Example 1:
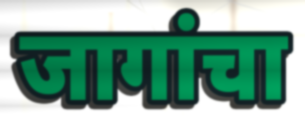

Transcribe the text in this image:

जागांचा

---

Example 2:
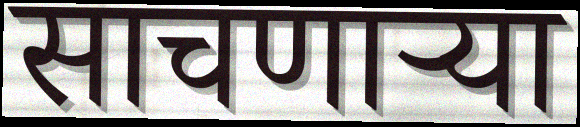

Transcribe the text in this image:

साचणार्‍या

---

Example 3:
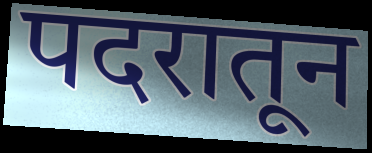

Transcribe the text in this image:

पदरातून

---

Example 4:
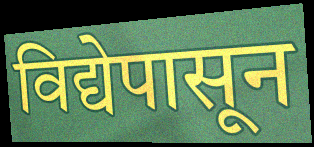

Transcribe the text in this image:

विद्येपासून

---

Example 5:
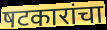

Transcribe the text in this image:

षटकारांचा